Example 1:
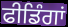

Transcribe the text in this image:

ਫੀਡਿੰਗਾਂ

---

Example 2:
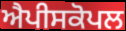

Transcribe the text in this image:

ਐਪੀਸਕੋਪਲ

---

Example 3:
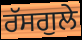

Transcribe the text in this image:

ਰੱਸਗੁਲੇ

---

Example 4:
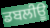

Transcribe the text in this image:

ਡਬਲੀਊ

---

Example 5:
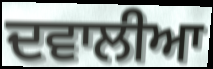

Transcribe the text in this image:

ਦਵਾਲੀਆ